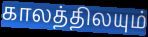
காலத்திலயும்